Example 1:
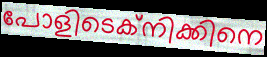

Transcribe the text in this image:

പോളിടെക്നിക്കിനെ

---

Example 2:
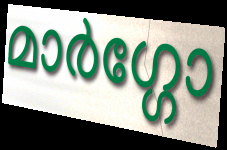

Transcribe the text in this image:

മാർഗ്ഗോ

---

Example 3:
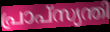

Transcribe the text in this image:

പ്രാപ്സ്യന്തി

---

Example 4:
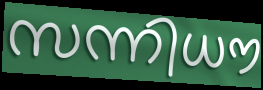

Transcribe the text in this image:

സന്നിധൗ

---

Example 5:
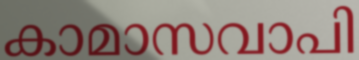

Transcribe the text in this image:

കാമാസവാപി